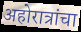
अहोरात्रांचा